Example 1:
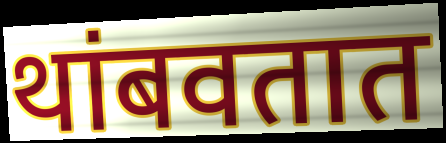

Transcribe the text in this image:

थांबवतात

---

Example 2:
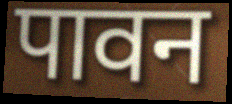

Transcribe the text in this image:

पावन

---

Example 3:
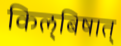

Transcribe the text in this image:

किल्बिषात्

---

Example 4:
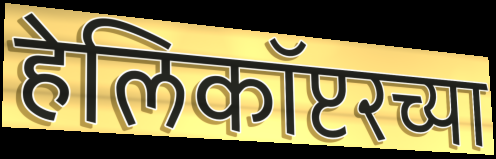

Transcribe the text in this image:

हेलिकॉप्टरच्या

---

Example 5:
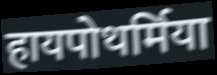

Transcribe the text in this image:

हायपोथर्मिया